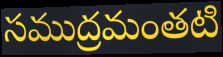
సముద్రమంతటి